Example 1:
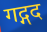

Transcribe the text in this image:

गद्गद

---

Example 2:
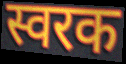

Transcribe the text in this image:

स्वरक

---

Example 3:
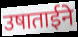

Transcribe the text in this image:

उषाताईने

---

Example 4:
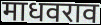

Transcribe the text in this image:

माधवराव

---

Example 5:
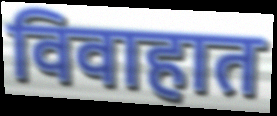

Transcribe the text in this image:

विवाहात